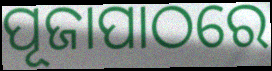
ପୂଜାପାଠରେ